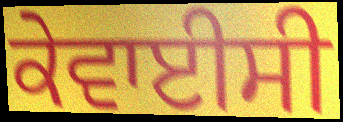
ਕੇਵਾਈਸੀ